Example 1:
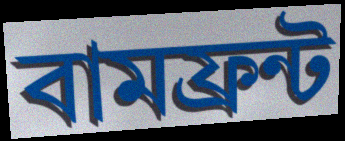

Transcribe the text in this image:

বামফ্রন্ট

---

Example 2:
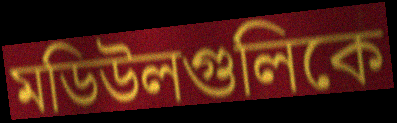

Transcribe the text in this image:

মডিউলগুলিকে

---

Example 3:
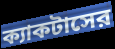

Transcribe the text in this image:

ক্যাকটাসের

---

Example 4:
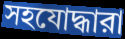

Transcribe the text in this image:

সহযোদ্ধারা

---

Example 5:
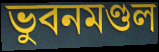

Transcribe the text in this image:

ভুবনমণ্ডল